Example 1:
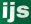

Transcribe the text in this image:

ijs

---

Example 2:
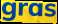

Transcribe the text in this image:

gras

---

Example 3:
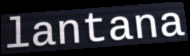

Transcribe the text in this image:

lantana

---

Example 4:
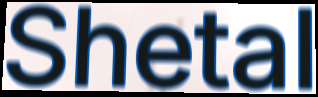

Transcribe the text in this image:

Shetal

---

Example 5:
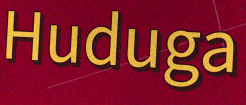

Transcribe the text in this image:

Huduga